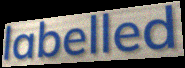
labelled